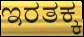
ಇರತಕ್ಕ